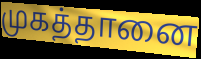
முகத்தானை